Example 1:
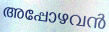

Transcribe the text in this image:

അപ്പോഴവൻ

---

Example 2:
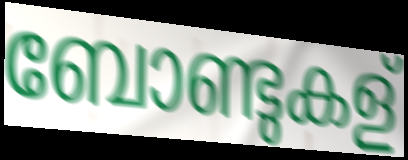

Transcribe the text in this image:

ബോണ്ടുകള്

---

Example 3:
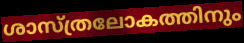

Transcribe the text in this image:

ശാസ്ത്രലോകത്തിനും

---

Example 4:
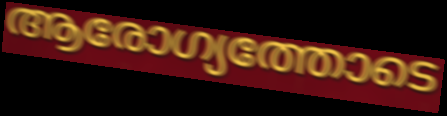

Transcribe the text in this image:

ആരോഗ്യത്തോടെ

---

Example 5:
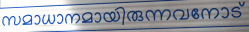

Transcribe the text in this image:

സമാധാനമായിരുന്നവനോട്